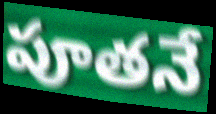
పూతనే